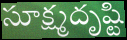
సూక్ష్మదృష్టి